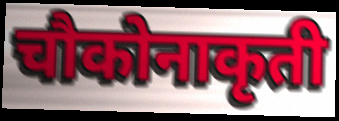
चौकोनाकृती